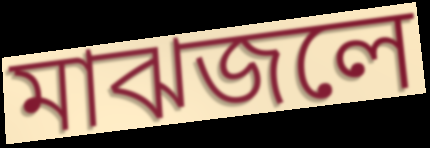
মাঝজলে